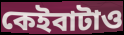
কেইবাটাও